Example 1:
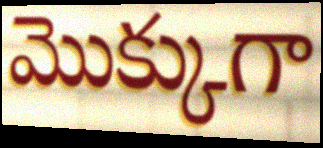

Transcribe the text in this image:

మొక్కుగా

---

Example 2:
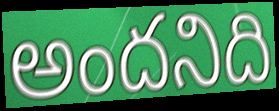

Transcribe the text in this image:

అందనిది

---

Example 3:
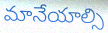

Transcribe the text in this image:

మానేయాల్సి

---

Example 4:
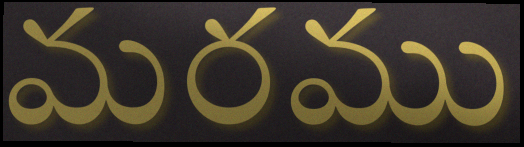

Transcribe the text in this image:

మరము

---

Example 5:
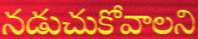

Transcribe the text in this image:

నడుచుకోవాలని